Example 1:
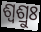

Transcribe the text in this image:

ଶ୍ଵଶ୍ରୁଃ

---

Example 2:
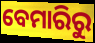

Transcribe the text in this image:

ବେମାରିରୁ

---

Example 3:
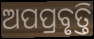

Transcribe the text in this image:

ଅପପ୍ରବୃତ୍ତି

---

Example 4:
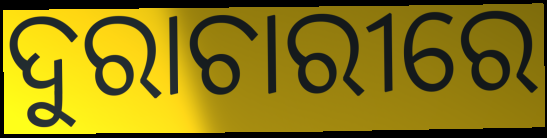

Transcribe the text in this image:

ଦୁରାଚାରୀରେ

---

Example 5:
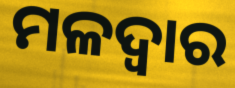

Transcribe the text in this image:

ମଳଦ୍ଵାର